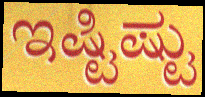
ಇಷ್ಟಿಷ್ಟು